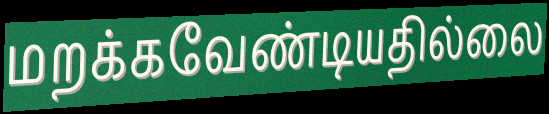
மறக்கவேண்டியதில்லை